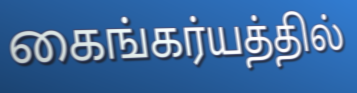
கைங்கர்யத்தில்